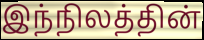
இந்நிலத்தின்